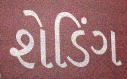
શેડિંગ